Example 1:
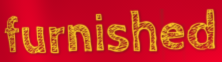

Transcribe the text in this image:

furnished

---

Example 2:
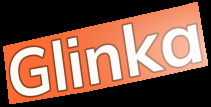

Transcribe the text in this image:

Glinka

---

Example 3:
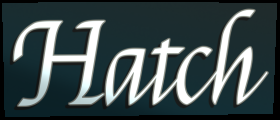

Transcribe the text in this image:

Hatch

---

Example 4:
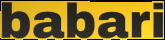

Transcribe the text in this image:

babari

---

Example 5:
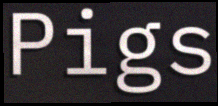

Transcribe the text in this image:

Pigs